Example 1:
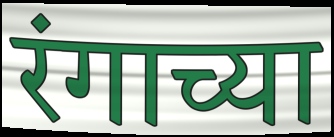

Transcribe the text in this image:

रंगाच्या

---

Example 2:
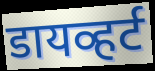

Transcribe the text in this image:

डायव्हर्ट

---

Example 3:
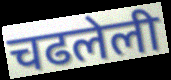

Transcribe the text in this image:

चढलेली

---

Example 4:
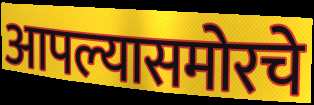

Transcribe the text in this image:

आपल्यासमोरचे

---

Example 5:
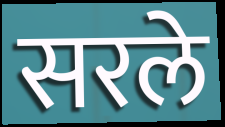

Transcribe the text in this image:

सरले